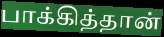
பாக்கித்தான்